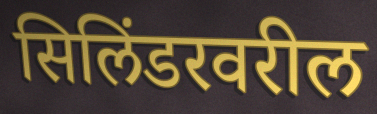
सिलिंडरवरील